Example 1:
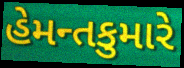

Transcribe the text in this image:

હેમન્તકુમારે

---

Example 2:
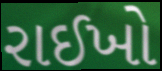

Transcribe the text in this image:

રાઈખો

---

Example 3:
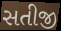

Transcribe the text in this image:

સતીજી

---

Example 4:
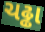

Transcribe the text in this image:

ચઢ્ઢા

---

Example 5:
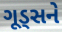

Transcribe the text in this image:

ગૂડ્સને